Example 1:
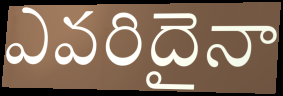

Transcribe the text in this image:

ఎవరిదైనా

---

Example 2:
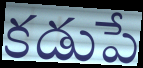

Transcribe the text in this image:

కడుపే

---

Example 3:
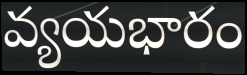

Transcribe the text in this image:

వ్యయభారం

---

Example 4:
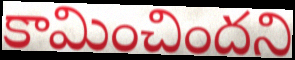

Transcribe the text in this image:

కామించిందని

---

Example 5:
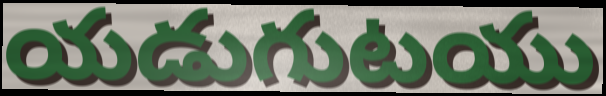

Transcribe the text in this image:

యడుగుటయు